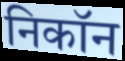
निकॉन